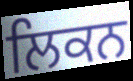
ਲਿਕਨ